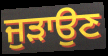
ਜੁੜਾਉਣ